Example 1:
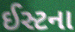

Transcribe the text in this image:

ઈસ્ટના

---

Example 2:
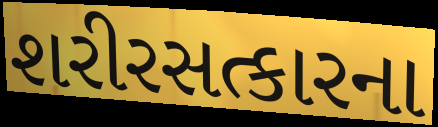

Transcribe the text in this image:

શરીરસત્કારના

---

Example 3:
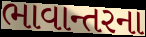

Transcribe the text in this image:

ભાવાન્તરના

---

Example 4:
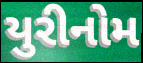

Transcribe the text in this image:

યુરીનોમ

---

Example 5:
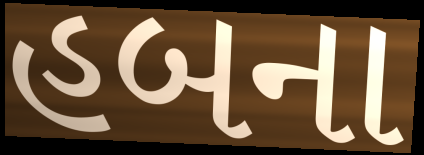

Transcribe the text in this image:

હબના